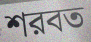
শরবত